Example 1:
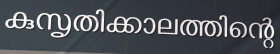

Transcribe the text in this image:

കുസൃതിക്കാലത്തിന്റെ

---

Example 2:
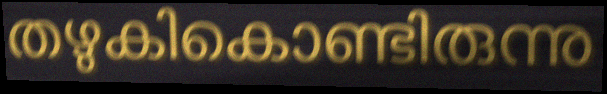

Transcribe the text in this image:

തഴുകികൊണ്ടിരുന്നു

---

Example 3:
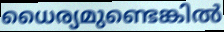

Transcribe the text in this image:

ധൈര്യമുണ്ടെങ്കിൽ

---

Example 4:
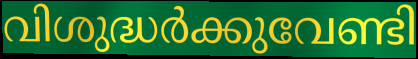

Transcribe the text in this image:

വിശുദ്ധർക്കുവേണ്ടി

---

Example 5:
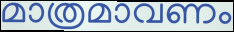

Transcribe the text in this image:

മാത്രമാവണം